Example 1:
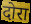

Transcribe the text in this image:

दोरा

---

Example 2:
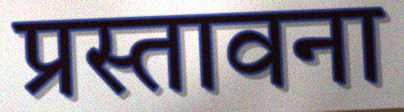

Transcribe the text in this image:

प्रस्तावना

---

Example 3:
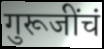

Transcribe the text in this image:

गुरूजींचं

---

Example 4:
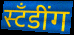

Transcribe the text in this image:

स्टँडींग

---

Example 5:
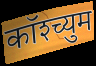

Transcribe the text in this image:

कॉश्च्युम